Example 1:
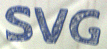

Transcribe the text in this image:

SVG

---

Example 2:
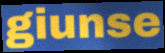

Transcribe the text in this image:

giunse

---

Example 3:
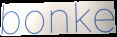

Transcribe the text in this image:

bonke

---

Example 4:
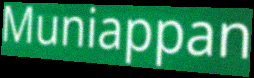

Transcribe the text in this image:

Muniappan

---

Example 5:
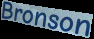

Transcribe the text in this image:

Bronson